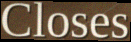
Closes